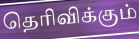
தெரிவிக்கும்